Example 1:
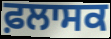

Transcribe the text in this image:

ਫ਼ਲਾਸਕ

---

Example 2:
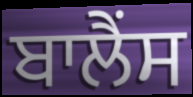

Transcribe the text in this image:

ਬਾਲੈਂਸ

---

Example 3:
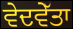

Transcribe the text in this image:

ਵੇਦਵੇੱਤਾ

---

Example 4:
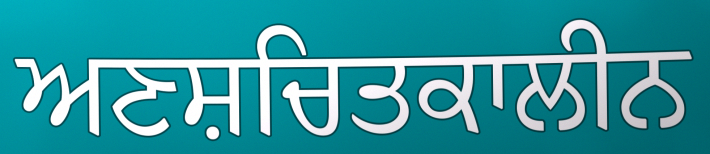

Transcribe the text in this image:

ਅਣਸ਼ਚਿਤਕਾਲੀਨ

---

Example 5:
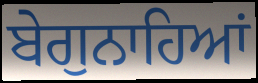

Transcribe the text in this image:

ਬੇਗੁਨਾਹਿਆਂ